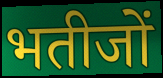
भतीजों